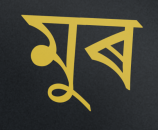
মুৰ